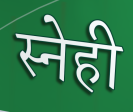
स्नेही